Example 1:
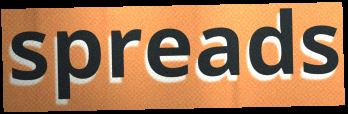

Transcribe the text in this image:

spreads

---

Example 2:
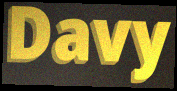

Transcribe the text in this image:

Davy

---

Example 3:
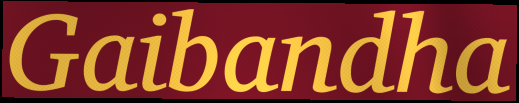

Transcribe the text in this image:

Gaibandha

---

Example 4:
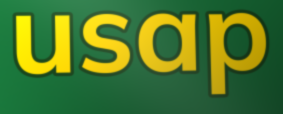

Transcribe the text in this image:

usap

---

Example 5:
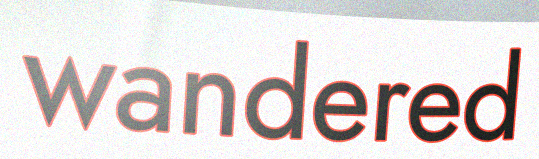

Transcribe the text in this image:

wandered